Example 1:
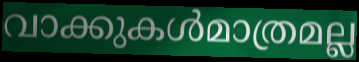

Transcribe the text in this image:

വാക്കുകൾമാത്രമല്ല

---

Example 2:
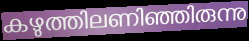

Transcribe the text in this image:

കഴുത്തിലണിഞ്ഞിരുന്നു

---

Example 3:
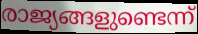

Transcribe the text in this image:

രാജ്യങ്ങളുണ്ടെന്ന്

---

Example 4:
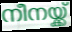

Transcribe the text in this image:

നീനയ്ക്ക്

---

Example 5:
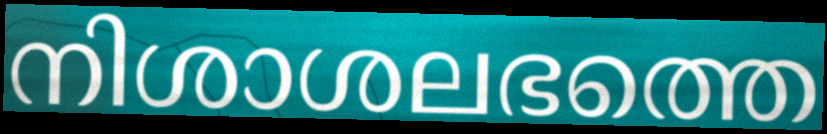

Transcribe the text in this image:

നിശാശലഭത്തെ